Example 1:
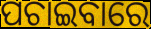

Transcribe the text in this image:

ପଚାଇବାରେ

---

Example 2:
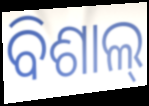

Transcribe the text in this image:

ବିଶାଲ୍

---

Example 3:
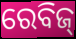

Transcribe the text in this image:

ରେବିଜ୍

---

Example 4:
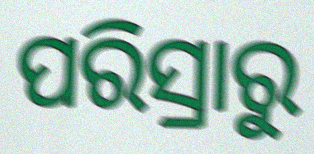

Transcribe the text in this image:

ପରିସ୍ରାରୁ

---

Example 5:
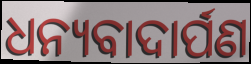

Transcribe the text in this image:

ଧନ୍ୟବାଦାର୍ପଣ